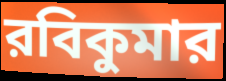
রবিকুমার